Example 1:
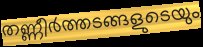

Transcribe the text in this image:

തണ്ണീർത്തടങ്ങളുടെയും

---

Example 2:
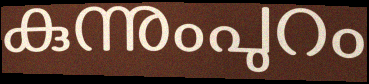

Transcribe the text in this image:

കുന്നുംപുറം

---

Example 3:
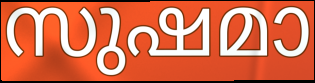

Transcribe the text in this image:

സുഷമാ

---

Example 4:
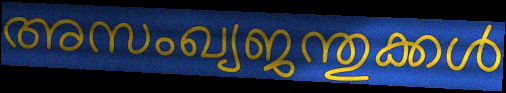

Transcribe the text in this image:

അസംഖ്യജന്തുക്കൾ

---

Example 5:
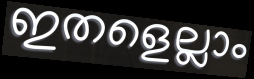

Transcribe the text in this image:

ഇതളെല്ലാം